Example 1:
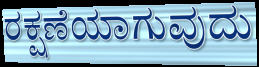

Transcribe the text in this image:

ರಕ್ಷಣೆಯಾಗುವುದು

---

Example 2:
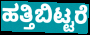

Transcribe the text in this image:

ಹತ್ತಿಬಿಟ್ಟರೆ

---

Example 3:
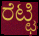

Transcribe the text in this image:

ರೆಟ್ಟಿ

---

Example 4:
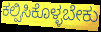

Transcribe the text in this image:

ಕಲ್ಪಿಸಿಕೊಳ್ಳಬೇಕು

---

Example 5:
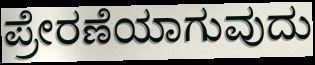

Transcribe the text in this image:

ಪ್ರೇರಣೆಯಾಗುವುದು